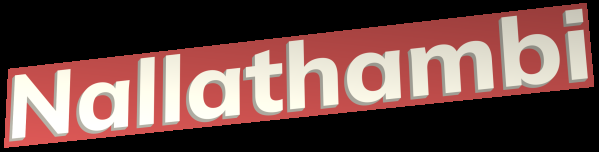
Nallathambi